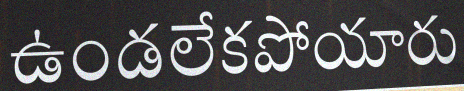
ఉండలేకపోయారు